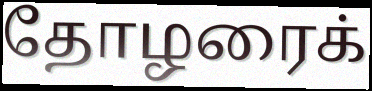
தோழரைக்